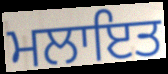
ਮਲਾਇਤ